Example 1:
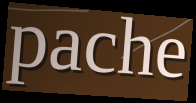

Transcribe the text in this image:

pache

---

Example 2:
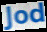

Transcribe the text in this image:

Jod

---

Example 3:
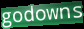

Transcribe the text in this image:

godowns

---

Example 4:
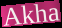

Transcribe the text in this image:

Akha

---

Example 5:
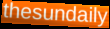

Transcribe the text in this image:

thesundaily